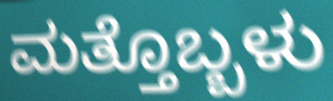
ಮತ್ತೊಬ್ಬಳು